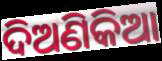
ଦିଅଣିକିଆ